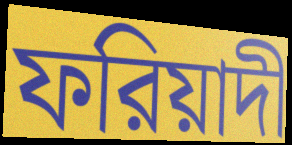
ফরিয়াদী